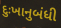
દુઃખાનુબંધી